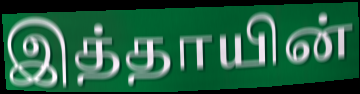
இத்தாயின்